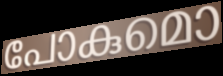
പോകുമൊ